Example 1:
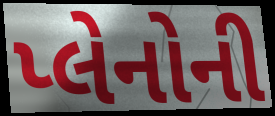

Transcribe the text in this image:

પ્લેનોની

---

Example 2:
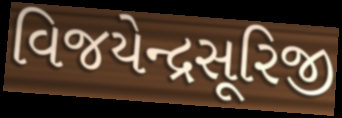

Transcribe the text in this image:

વિજયેન્દ્રસૂરિજી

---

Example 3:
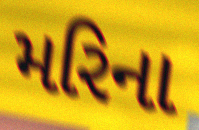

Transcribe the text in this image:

મરિના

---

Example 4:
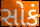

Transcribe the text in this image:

સોકં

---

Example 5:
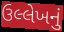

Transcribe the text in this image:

ઉલ્લેખનું